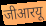
जीआरयू